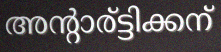
അന്റാര്ട്ടിക്കന്